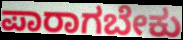
ಪಾರಾಗಬೇಕು